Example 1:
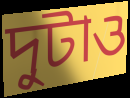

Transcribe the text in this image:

দুটাও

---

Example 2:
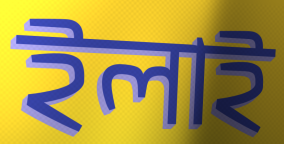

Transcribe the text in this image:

ইলাই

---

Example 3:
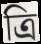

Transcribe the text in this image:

ত্ৰি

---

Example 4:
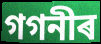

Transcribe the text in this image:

গগনীৰ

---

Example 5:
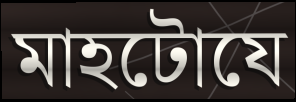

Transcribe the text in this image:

মাহটোযে